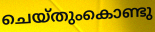
ചെയ്തുംകൊണ്ടു